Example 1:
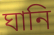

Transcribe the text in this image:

ঘানি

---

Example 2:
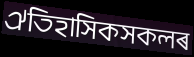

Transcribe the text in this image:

ঐতিহাসিকসকলৰ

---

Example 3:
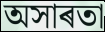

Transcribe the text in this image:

অসাৰতা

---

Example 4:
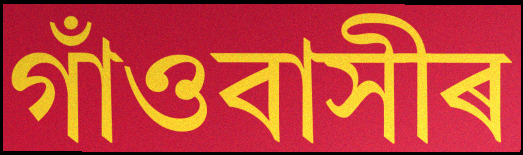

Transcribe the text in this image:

গাঁওবাসীৰ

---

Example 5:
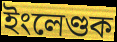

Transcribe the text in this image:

ইংলেণ্ডক